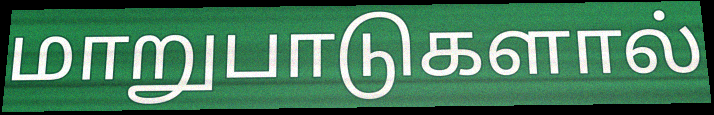
மாறுபாடுகளால்